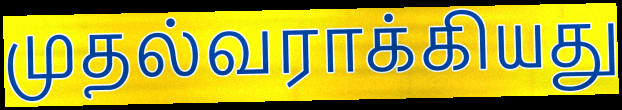
முதல்வராக்கியது